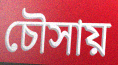
চৌসায়